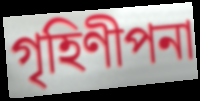
গৃহিণীপনা